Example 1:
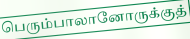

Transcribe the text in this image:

பெரும்பாலானோருக்குத்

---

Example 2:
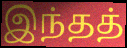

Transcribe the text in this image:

இந்தத்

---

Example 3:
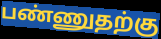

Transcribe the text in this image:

பண்ணுதற்கு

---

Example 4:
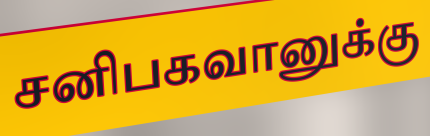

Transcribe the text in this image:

சனிபகவானுக்கு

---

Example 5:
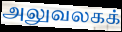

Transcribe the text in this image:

அலுவலகக்